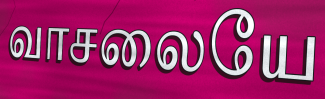
வாசலையே